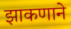
झाकणाने